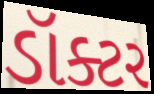
ડૉક્ટર